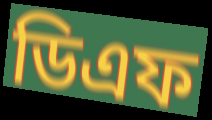
ডিএফ